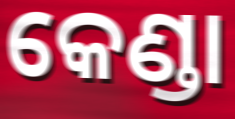
କେଣ୍ଡା